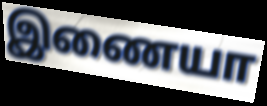
இணையா